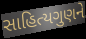
સાહિત્યગુણને